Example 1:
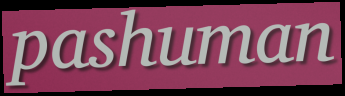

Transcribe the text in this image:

pashuman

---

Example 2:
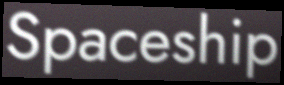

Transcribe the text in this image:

Spaceship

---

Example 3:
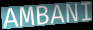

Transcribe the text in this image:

AMBANI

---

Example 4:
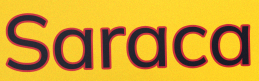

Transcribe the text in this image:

Saraca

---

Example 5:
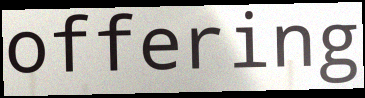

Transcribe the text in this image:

offering